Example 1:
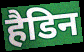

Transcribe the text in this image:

हैडिन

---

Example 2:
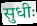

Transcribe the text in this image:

सुधीः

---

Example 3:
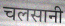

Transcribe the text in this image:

चलसानी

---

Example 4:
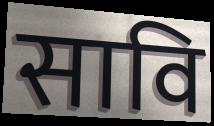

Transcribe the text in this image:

सावि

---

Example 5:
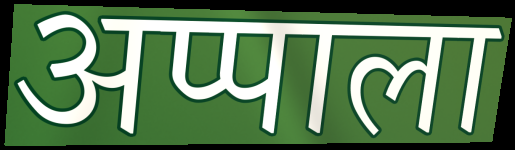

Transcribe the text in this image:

अप्पाला